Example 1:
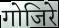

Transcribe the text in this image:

गोजिरे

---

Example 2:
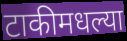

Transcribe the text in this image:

टाकीमधल्या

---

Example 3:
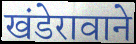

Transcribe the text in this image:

खंडेरावाने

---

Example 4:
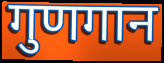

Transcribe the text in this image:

गुणगान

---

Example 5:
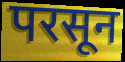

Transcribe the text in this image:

परसून